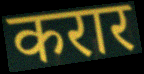
करार